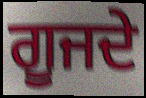
ਗੂਜਦੇ